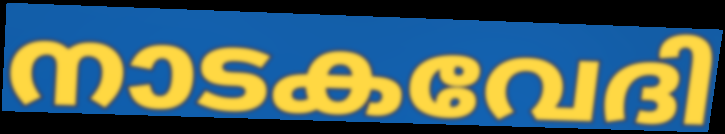
നാടകവേദി